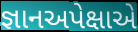
જ્ઞાનઅપેક્ષાએ